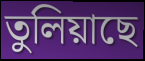
তুলিয়াছে